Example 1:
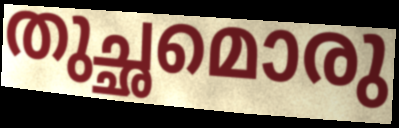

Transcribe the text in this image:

തുച്ഛമൊരു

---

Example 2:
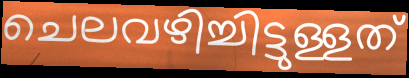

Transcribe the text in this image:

ചെലവഴിച്ചിട്ടുള്ളത്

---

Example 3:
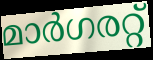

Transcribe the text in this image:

മാർഗരറ്റ്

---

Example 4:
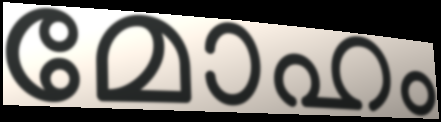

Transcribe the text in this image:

മോഹം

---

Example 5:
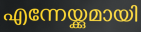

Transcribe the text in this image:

എന്നേയ്ക്കുമായി